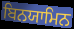
ਬਿਨਯਾਮਿਨ